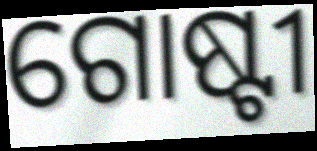
ଗୋଷ୍ଟୀ